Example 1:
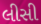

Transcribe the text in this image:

લીસી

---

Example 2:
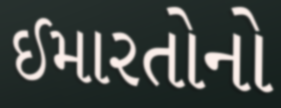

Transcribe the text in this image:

ઈમારતોનો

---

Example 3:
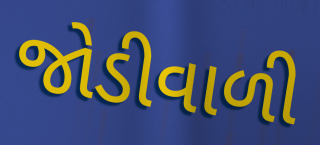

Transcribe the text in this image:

જોડીવાળી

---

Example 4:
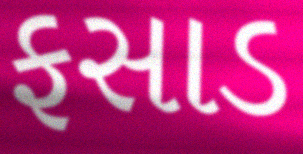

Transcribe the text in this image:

ફસાડ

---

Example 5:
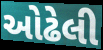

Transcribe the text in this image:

ઓઢેલી